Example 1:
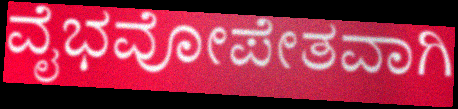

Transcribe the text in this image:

ವೈಭವೋಪೇತವಾಗಿ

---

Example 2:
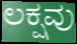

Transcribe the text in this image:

ಲಕ್ಷವು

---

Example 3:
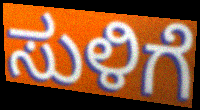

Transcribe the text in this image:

ಸುಳಿಗೆ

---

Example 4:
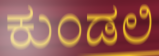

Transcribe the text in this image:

ಕುಂಡಲಿ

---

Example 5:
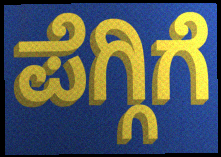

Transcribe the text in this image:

ಪೆಗ್ಗಿಗೆ